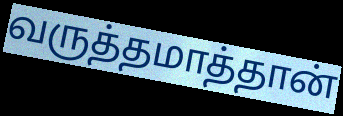
வருத்தமாத்தான்